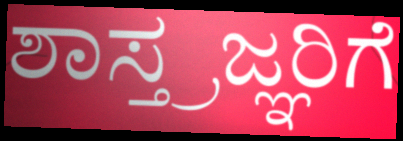
ಶಾಸ್ತ್ರಜ್ಞರಿಗೆ